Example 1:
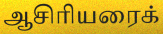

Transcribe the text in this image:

ஆசிரியரைக்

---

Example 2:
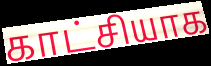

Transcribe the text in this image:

காட்சியாக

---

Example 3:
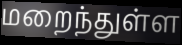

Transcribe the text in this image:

மறைந்துள்ள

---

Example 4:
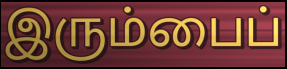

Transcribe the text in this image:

இரும்பைப்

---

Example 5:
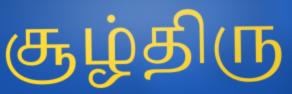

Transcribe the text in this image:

சூழ்திரு